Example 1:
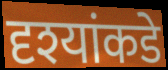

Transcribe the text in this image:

दृश्यांकडे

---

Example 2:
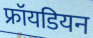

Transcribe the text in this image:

फ्रॉयडियन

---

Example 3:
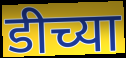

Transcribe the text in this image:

डीच्या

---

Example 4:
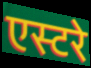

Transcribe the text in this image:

एस्टरे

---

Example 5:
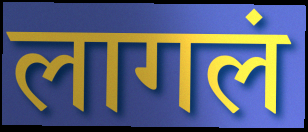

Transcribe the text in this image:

लागलं